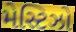
મેસ્ટિઝો